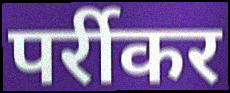
पर्रीकर